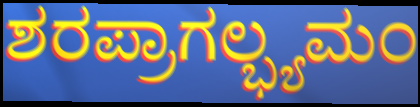
ಶರಪ್ರಾಗಲ್ಭ್ಯಮಂ